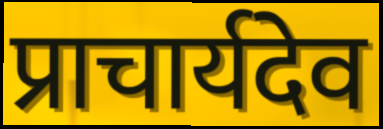
प्राचार्यदेव